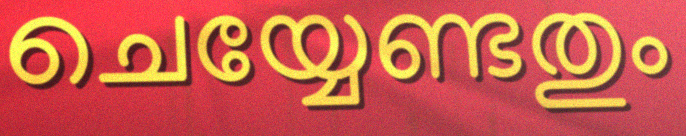
ചെയ്യേണ്ടതും